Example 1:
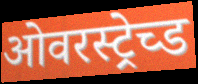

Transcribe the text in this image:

ओवरस्ट्रेच्ड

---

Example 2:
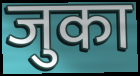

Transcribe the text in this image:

जुका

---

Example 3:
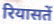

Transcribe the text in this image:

रियासतें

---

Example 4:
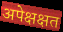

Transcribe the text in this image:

अपेक्षक्षत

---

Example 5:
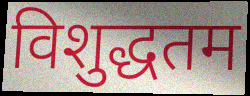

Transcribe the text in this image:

विशुद्धतम